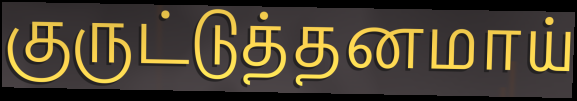
குருட்டுத்தனமாய்